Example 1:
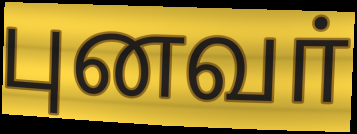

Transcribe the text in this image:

புனவர்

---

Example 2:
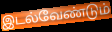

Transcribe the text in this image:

இடல்வேண்டும்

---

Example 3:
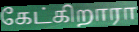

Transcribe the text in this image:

கேட்கிறாரா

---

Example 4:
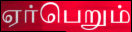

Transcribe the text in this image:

ஏர்பெறும்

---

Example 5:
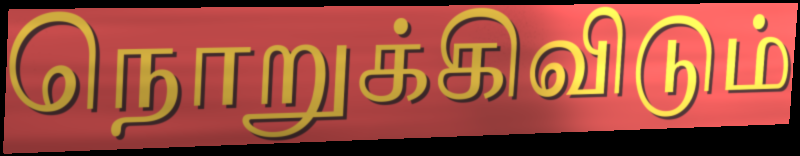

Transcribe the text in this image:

நொறுக்கிவிடும்